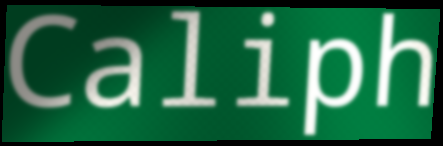
Caliph